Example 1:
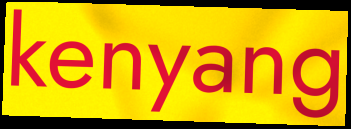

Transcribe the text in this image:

kenyang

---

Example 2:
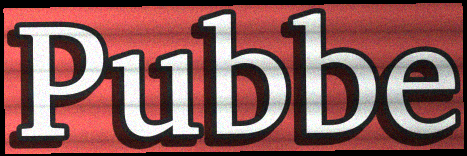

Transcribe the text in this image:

Pubbe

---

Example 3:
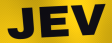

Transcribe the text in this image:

JEV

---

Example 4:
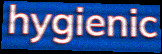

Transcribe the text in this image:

hygienic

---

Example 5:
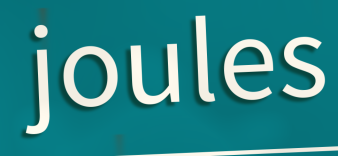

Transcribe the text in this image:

joules